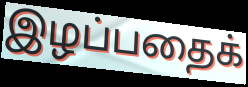
இழப்பதைக்